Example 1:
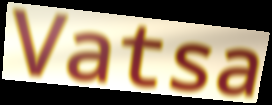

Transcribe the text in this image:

Vatsa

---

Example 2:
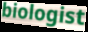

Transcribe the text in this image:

biologist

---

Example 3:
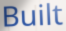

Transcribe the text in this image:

Built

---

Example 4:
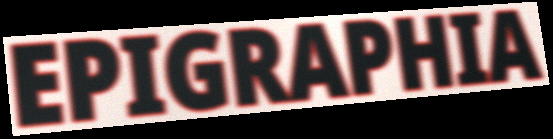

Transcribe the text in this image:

EPIGRAPHIA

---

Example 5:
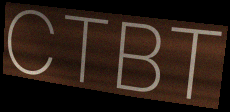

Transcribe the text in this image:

CTBT